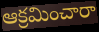
ఆక్రమించారా